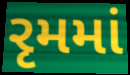
રૃમમાં